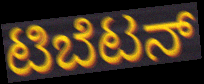
ಟಿಬೆಟನ್